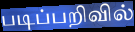
படிப்பறிவில்